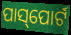
ପାସ୍‌ପୋର୍ଟ